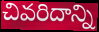
చివరిదాన్ని